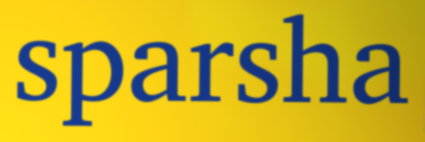
sparsha